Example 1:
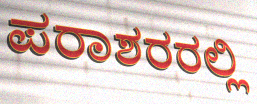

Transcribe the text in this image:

ಪರಾಶರರಲ್ಲಿ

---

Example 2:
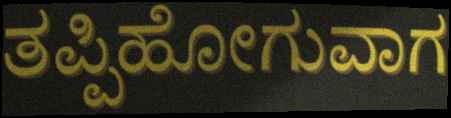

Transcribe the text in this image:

ತಪ್ಪಿಹೋಗುವಾಗ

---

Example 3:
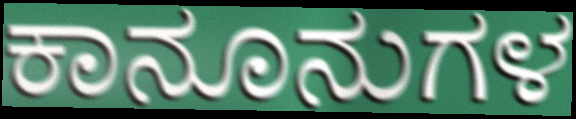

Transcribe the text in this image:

ಕಾನೂನುಗಳ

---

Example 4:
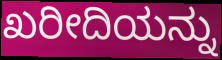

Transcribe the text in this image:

ಖರೀದಿಯನ್ನು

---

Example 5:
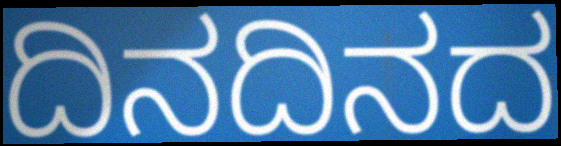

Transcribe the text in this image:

ದಿನದಿನದ